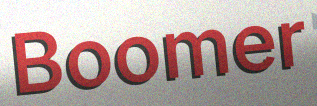
Boomer